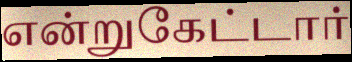
என்றுகேட்டார்